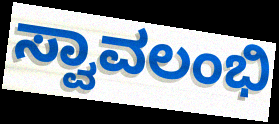
ಸ್ವಾವಲಂಭಿ